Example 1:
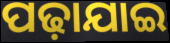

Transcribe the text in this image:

ପଢ଼ାଯାଇ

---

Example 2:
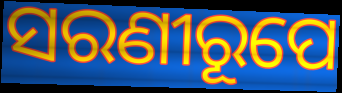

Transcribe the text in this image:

ସରଣୀରୂପେ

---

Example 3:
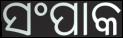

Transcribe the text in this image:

ସଂପାକ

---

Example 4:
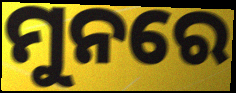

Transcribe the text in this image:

ମୁନରେ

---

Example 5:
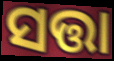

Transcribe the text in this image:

ସତ୍ତା